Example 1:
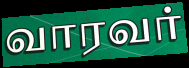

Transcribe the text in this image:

வாரவர்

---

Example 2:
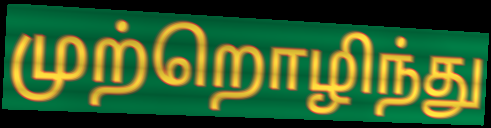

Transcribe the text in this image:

முற்றொழிந்து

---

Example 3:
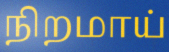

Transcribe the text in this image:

நிறமாய்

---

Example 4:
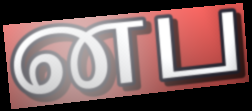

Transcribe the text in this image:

னப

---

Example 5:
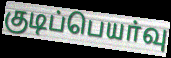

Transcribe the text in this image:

குடிப்பெயர்வு